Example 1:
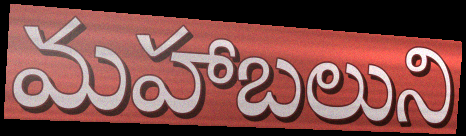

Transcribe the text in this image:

మహాబలుని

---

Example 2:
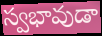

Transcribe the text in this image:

స్వభావుడా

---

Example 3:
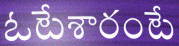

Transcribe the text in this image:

ఓటేశారంటే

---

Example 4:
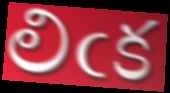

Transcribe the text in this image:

లిఁక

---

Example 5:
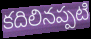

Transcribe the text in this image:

కదిలినప్పటి